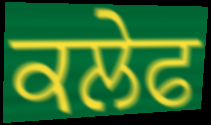
ਕਲੇਫ